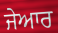
ਜੇਆਰ